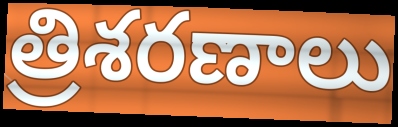
త్రిశరణాలు